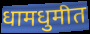
धामधुमीत